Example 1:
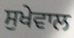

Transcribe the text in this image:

ਸੁਖੇਵਾਲ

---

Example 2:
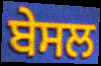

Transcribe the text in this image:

ਬੇਸਲ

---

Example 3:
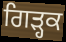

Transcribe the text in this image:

ਗਿੜ੍ਹਕ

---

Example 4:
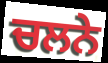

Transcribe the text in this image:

ਚਲਨੇ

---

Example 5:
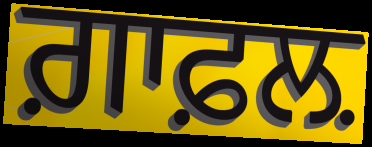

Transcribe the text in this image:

ਗ਼ਾਫ਼ਲ਼